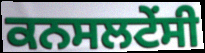
ਕਨਸਲਟੇਂਸੀ